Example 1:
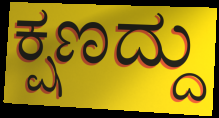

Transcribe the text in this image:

ಕ್ಷಣದ್ದು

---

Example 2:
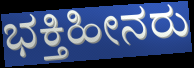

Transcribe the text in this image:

ಭಕ್ತಿಹೀನರು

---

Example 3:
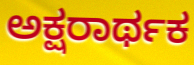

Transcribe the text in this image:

ಅಕ್ಷರಾರ್ಥಕ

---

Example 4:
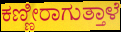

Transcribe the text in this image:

ಕಣ್ಣೀರಾಗುತ್ತಾಳೆ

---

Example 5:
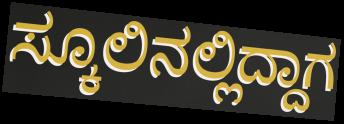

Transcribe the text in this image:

ಸ್ಕೂಲಿನಲ್ಲಿದ್ದಾಗ